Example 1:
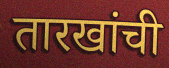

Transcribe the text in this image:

तारखांची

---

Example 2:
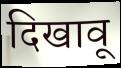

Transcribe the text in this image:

दिखावू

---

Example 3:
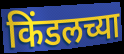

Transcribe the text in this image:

किंडलच्या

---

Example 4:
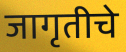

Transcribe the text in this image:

जागृतीचे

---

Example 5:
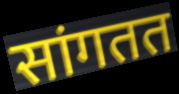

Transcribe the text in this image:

सांगतत